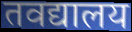
तवद्यालय